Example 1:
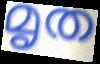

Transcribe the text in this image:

മൃത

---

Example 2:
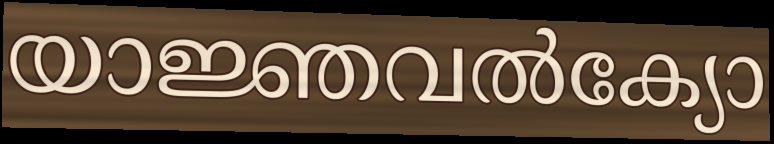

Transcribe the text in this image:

യാജ്ഞവൽക്യോ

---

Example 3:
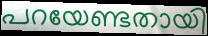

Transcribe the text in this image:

പറയേണ്ടതായി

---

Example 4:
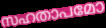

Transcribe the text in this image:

സഹതാപമോ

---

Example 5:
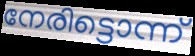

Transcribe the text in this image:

നേരിട്ടൊന്ന്